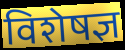
विशेषज्ञ